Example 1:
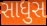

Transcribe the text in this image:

સાધુસ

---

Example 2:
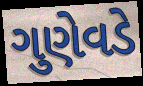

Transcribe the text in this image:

ગુણેવડે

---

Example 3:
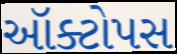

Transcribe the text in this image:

ઑક્ટોપસ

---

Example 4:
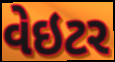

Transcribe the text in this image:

વેઇટર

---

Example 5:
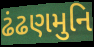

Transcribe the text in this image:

ઢંઢણમુનિ